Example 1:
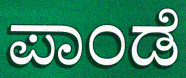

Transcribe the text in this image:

ಪಾಂಡೆ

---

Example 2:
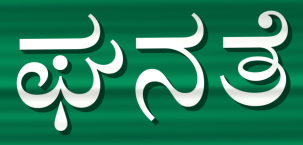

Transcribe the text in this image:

ಘನತೆ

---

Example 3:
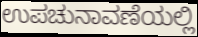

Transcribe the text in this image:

ಉಪಚುನಾವಣೆಯಲ್ಲಿ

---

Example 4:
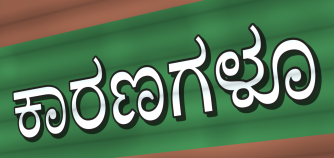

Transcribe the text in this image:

ಕಾರಣಗಳೂ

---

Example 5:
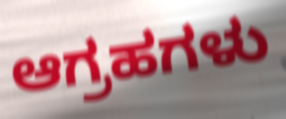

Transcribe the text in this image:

ಆಗ್ರಹಗಳು